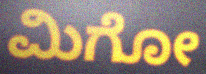
ಮಿಗೋ